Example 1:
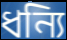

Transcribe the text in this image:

ধন্যি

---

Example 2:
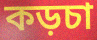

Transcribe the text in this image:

কড়চা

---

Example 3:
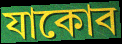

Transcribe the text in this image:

যাকোব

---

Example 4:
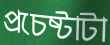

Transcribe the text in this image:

প্রচেষ্টাটা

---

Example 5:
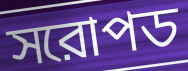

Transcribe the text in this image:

সরোপড